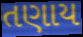
તણાય